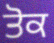
ਤੋਕ